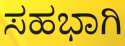
ಸಹಭಾಗಿ